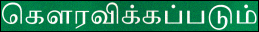
கௌரவிக்கப்படும்